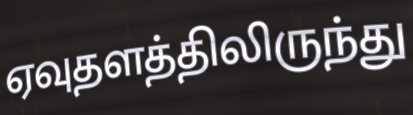
ஏவுதளத்திலிருந்து